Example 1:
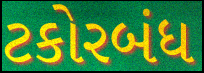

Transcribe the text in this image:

ટકોરબંધ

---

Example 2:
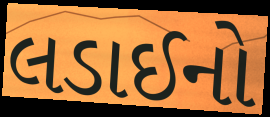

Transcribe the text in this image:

લડાઈનો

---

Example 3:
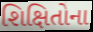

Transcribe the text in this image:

શિક્ષિતોના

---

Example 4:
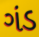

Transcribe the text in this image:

ગંડ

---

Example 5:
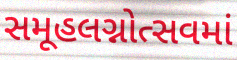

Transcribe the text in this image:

સમૂહલગ્નોત્સવમાં